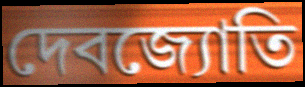
দেবজ্যোতি